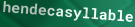
hendecasyllable